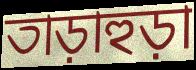
তাড়াহুড়া